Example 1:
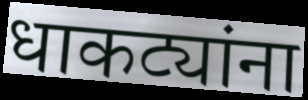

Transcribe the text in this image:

धाकट्यांना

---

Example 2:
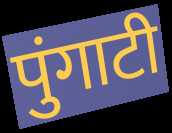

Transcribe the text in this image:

पुंगाटी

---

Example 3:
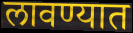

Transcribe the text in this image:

लावण्यात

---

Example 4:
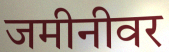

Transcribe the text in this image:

जमीनीवर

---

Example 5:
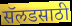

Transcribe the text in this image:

सॅलडसाठी